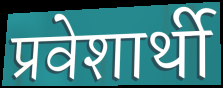
प्रवेशार्थी